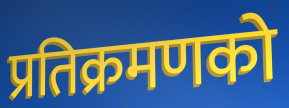
प्रतिक्रमणको